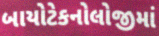
બાયોટેકનોલોજીમાં